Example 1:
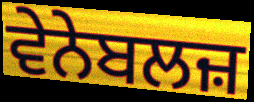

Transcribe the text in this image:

ਵੇਨੇਬਲਜ਼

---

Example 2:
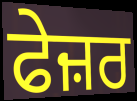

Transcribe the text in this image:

ਫੇਜ਼ਰ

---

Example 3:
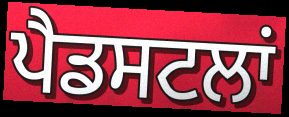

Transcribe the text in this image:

ਪੈਡਸਟਲਾਂ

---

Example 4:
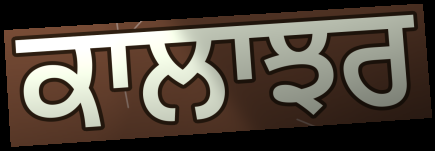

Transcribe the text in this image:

ਕਾਲਾਝਰ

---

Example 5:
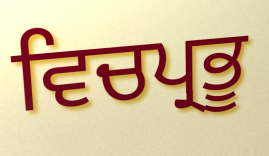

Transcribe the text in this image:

ਵਿਚਪ੍ਰਭੂ